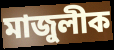
মাজুলীক